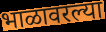
भाळावरल्या